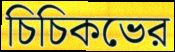
চিচিকভের